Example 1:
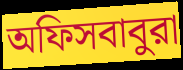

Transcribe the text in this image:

অফিসবাবুরা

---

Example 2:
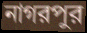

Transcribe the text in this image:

নাগরপুর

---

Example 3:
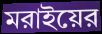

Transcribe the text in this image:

মরাইয়ের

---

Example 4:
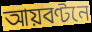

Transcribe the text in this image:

আয়বণ্টনে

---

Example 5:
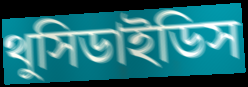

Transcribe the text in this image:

থুসিডাইডিস